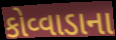
કોવ્વાડાના